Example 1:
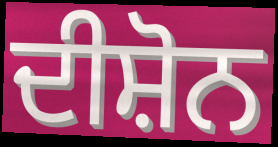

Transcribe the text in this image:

ਦੀਸ਼ੋਨ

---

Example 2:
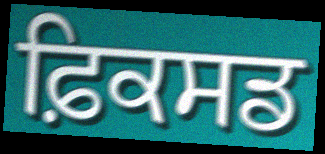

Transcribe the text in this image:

ਫ਼ਿਕਸਡ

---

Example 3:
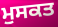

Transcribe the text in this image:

ਮੁਸਕਤ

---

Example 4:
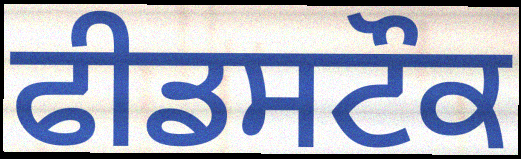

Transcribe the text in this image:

ਫੀਡਸਟੌਕ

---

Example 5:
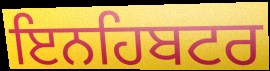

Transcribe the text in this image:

ਇਨਹਿਬਟਰ